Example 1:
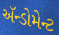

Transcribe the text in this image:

ઍન્ડોમેન્ટ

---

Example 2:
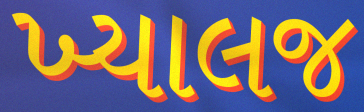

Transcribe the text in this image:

ખ્યાલજ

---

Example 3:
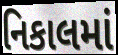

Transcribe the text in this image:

નિકાલમાં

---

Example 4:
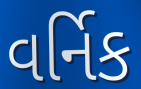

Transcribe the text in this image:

વર્નિક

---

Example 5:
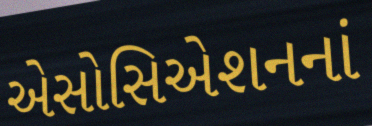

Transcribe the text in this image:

એસોસિએશનનાં